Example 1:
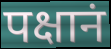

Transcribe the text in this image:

पक्षानं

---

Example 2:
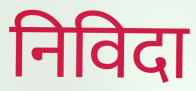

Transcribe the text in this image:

निविदा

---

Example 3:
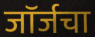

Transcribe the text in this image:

जॉर्जचा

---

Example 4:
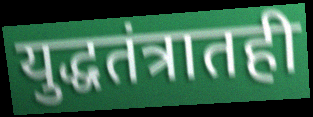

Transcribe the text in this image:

युद्धतंत्रातही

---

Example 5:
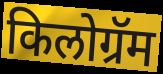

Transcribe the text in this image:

किलोग्रॅम